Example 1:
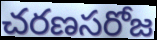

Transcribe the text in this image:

చరణసరోజ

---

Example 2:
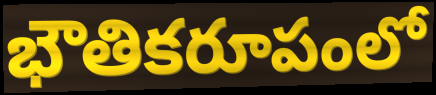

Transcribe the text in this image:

భౌతికరూపంలో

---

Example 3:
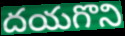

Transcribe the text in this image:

దయగొని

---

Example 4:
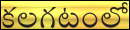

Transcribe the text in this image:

కలగటంలో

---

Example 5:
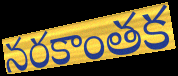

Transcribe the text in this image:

నరకాంతక